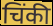
चिंकी